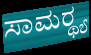
ಸಾಮರ್‍ಥ್ಯ